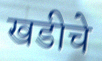
खडीचे